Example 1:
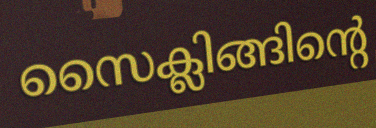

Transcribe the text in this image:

സൈക്ലിങ്ങിന്റെ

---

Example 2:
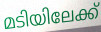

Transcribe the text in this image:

മടിയിലേക്ക്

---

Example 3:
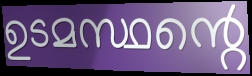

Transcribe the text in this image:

ഉടമസ്ഥന്റെ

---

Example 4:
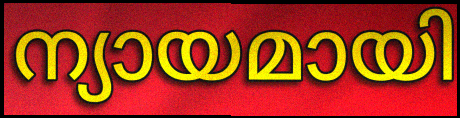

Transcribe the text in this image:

ന്യായമായി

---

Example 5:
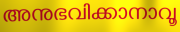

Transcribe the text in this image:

അനുഭവിക്കാനാവൂ